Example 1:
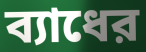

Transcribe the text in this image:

ব্যাধের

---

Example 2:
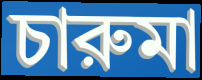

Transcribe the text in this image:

চারুমা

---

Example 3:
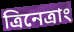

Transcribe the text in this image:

ত্রিনেত্রাং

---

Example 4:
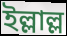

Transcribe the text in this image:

ইল্লাল্ল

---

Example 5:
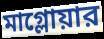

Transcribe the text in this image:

মাগ্লোয়ার